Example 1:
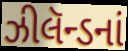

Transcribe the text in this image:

ઝીલૅન્ડનાં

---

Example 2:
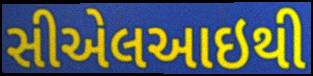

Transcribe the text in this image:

સીએલઆઇથી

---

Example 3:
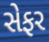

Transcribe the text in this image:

સેફર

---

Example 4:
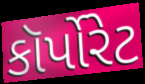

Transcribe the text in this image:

કૉર્પોરેટ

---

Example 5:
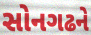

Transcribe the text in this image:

સોનગઢને